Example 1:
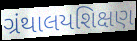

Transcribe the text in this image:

ગ્રંથાલયશિક્ષણ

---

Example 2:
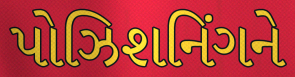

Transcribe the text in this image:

પોઝિશનિંગને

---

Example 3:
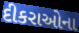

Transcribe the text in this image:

દીકરાઓના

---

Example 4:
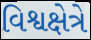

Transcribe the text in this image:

વિશ્વક્ષેત્રે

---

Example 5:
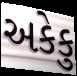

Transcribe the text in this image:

અકેકુ